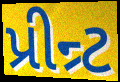
પ્રીન્ર્ટ